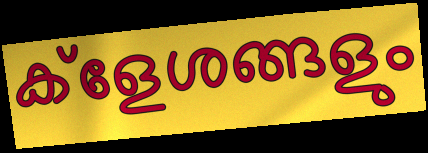
ക്ളേശങ്ങളും